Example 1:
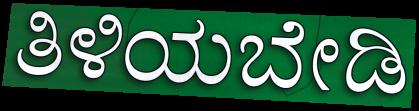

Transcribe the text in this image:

ತಿಳಿಯಬೇಡಿ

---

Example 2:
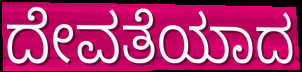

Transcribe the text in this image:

ದೇವತೆಯಾದ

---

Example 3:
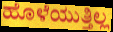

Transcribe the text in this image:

ಹೊಳೆಯುತ್ತಿಲ್ಲ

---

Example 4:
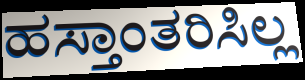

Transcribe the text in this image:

ಹಸ್ತಾಂತರಿಸಿಲ್ಲ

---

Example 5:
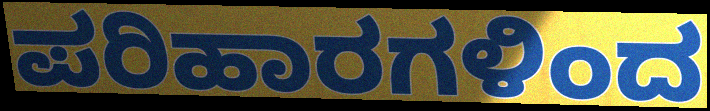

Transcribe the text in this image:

ಪರಿಹಾರಗಳಿಂದ